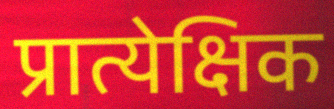
प्रात्येक्षिक